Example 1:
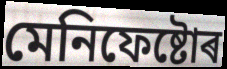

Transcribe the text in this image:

মেনিফেষ্টোৰ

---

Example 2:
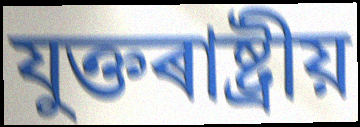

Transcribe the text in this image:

যুক্তৰাষ্ট্ৰীয়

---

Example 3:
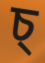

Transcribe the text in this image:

চ্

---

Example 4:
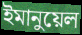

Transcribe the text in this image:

ইমানুয়েল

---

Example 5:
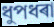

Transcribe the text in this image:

ধুপধৰা